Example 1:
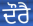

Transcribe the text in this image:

ਦੌਰੈ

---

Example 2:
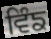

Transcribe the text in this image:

ਵਿੰਙ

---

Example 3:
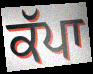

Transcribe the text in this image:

ਕੱਪਾ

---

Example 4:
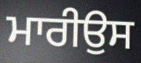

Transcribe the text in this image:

ਮਾਰੀਉਸ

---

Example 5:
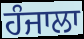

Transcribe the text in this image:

ਹੰਜਾਲਾ